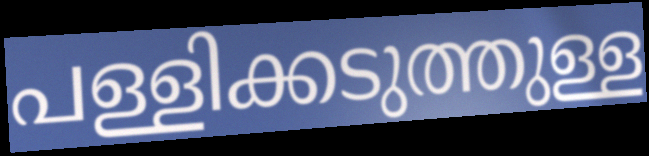
പള്ളിക്കടുത്തുള്ള